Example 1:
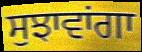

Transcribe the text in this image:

ਸੁਝਾਵਾਂਗਾ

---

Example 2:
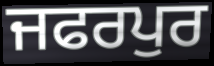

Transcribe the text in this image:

ਜਫਰਪੁਰ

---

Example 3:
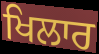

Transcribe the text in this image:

ਖਿਲਾਰ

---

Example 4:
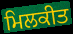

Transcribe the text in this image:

ਮਿਲਕੀਤ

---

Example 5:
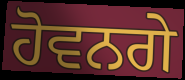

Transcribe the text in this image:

ਹੋਵਨਗੇ